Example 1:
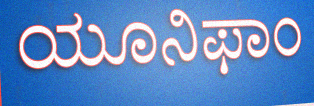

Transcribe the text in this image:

ಯೂನಿಫಾಂ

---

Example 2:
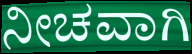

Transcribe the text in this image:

ನೀಚವಾಗಿ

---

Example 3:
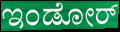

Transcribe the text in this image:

ಇಂಡೋರ್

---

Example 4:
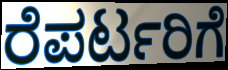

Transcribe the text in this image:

ರೆಪರ್ಟರಿಗೆ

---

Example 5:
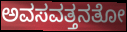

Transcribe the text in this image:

ಅವಸವತ್ತನತೋ